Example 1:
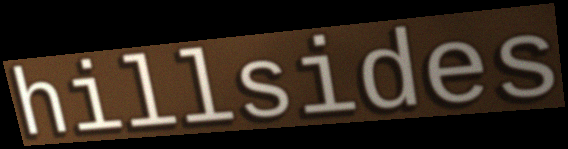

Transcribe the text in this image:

hillsides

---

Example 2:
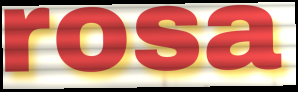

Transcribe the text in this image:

rosa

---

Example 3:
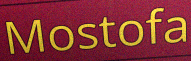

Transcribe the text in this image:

Mostofa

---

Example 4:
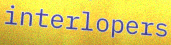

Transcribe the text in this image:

interlopers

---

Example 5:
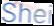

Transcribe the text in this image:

Shei